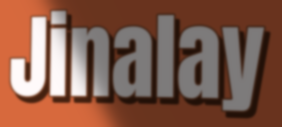
Jinalay